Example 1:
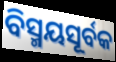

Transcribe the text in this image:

ବିସ୍ମୟସୂର୍ବକ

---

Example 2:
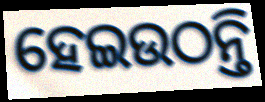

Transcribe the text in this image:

ହେଇଉଠନ୍ତି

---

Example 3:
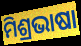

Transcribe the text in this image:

ମିଶ୍ରଭାଷା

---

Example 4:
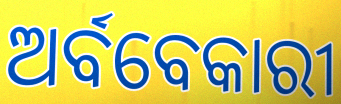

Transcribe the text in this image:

ଅର୍ବବେକାରୀ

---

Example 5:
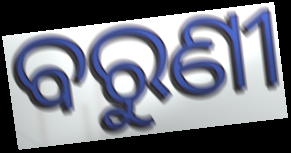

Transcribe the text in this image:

ବରୁଣୀ